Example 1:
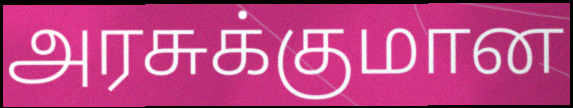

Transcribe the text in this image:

அரசுக்குமான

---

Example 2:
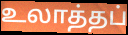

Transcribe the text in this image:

உலாத்தப்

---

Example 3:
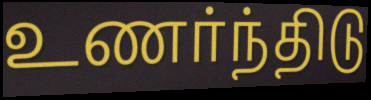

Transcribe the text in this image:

உணர்ந்திடு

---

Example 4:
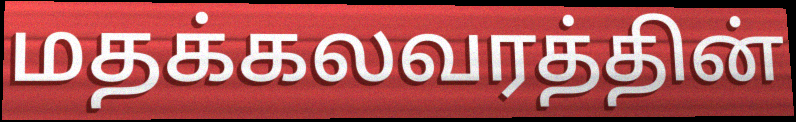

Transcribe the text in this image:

மதக்கலவரத்தின்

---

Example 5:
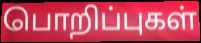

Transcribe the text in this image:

பொறிப்புகள்